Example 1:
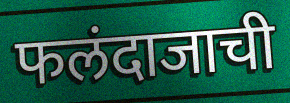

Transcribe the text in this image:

फलंदाजाची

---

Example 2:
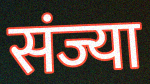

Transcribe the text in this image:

संज्या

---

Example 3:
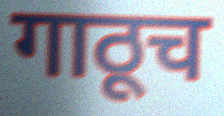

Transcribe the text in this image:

गाठूच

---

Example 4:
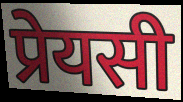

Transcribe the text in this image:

प्रेयसी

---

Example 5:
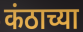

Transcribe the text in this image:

कंठाच्या